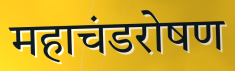
महाचंडरोषण